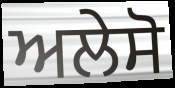
ਅਲੇਸੋ